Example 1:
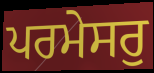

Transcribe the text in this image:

ਪਰਮੇਸਰੁ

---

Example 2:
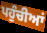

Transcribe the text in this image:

ਪਹੁੰਚੀਆਂ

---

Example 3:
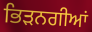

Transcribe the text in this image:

ਭਿੜਨਗੀਆਂ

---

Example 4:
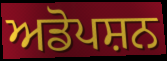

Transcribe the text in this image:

ਅਡੋਪਸ਼ਨ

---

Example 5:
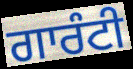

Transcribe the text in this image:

ਗਾਰੰਟੀ